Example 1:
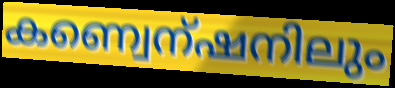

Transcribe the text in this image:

കണ്വെന്ഷനിലും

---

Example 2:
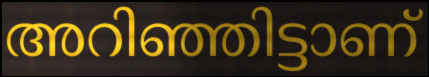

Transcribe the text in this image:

അറിഞ്ഞിട്ടാണ്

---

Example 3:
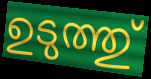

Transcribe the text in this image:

ഉടുത്തു്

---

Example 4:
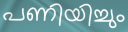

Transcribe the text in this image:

പണിയിച്ചും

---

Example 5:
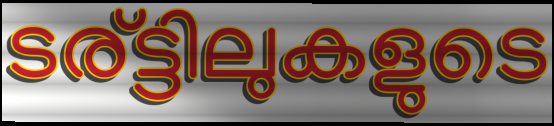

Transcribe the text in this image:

ടര്ട്ടിലുകളുടെ